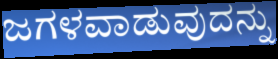
ಜಗಳವಾಡುವುದನ್ನು